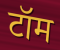
टॉम